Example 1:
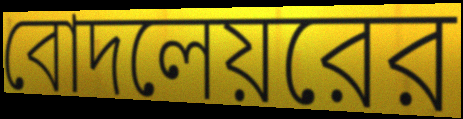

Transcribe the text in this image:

বোদলেয়রের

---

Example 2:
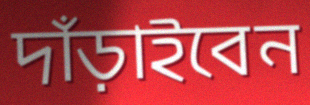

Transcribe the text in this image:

দাঁড়াইবেন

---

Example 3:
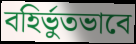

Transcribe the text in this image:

বহির্ভুতভাবে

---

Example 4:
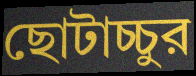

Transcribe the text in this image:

ছোটাচ্চুর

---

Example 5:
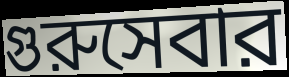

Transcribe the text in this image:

গুরুসেবার